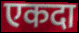
एकदा